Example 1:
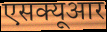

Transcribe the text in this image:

एसक्यूआर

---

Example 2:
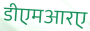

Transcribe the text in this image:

डीएमआरए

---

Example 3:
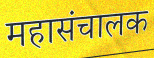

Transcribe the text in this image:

महासंचालक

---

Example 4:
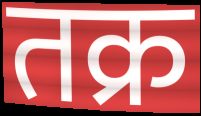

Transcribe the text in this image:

तक्र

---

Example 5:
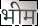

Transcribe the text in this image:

भीम